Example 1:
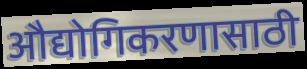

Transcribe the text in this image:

औद्योगिकरणासाठी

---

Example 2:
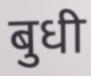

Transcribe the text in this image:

बुधी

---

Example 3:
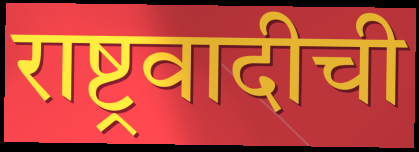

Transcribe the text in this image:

राष्ट्रवादीची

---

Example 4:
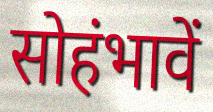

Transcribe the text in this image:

सोहंभावें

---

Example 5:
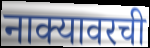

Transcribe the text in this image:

नाक्यावरची